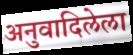
अनुवादिलेला